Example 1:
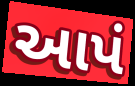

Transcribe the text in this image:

આપં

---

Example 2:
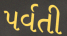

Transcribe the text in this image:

પર્વતી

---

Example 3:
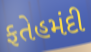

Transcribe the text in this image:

ફતેહમંદી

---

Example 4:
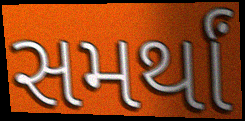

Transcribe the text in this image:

સમર્થાં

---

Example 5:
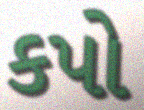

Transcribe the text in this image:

કપો